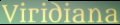
Viridiana